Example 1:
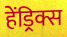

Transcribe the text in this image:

हेंड्रिक्स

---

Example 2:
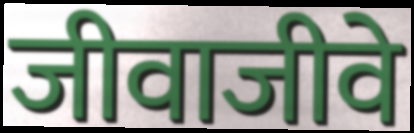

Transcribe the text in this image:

जीवाजीवे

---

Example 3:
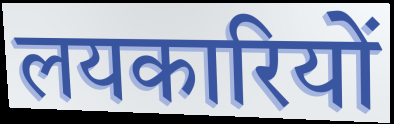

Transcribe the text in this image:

लयकारियों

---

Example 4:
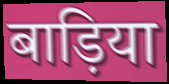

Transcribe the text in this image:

बाड़िया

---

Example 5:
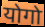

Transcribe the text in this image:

योगो